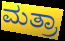
ಮತ್ರಾ